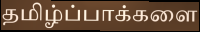
தமிழ்ப்பாக்களை